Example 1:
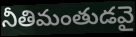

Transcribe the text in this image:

నీతిమంతుడవై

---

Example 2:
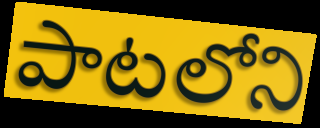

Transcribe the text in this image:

పాటలోని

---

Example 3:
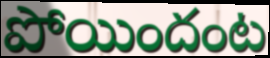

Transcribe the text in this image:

పోయిందంట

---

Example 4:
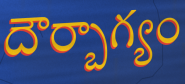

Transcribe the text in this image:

దౌర్బాగ్యం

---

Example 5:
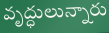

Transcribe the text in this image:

వృద్ధులున్నారు